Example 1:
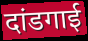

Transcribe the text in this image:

दांडगाई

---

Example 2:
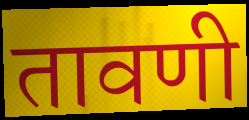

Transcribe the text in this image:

तावणी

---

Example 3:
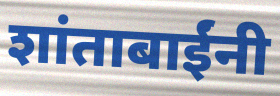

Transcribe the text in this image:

शांताबाईंनी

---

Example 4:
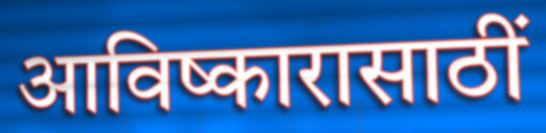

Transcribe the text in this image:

आविष्कारासाठीं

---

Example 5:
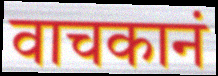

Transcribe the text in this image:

वाचकानं